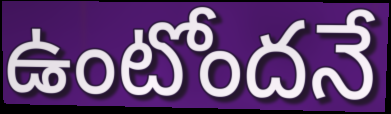
ఉంటోందనే